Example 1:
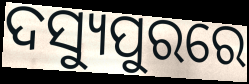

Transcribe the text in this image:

ଦସ୍ୟୁପୁରରେ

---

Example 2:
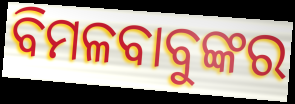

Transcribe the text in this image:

ବିମଳବାବୁଙ୍କର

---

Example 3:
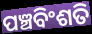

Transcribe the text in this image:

ପଞ୍ଚବିଂଶତି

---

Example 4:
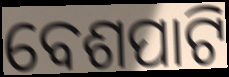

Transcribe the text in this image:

ବେଶପାଟି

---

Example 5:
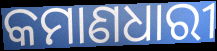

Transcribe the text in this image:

କମାଣଧାରୀ